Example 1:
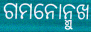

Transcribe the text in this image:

ଗମନୋନ୍ମୁଖ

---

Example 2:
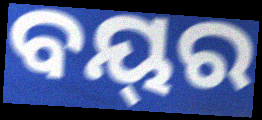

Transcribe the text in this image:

ବୟ୍‌ର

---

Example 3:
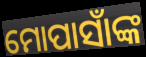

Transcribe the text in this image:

ମୋପାସାଁଙ୍କ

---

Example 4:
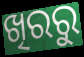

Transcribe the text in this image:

ଖିରରୁ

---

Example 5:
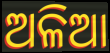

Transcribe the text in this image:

ଅଳିଆ